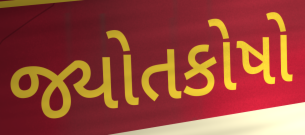
જ્યોતકોષો